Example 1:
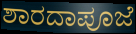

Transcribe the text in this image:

ಶಾರದಾಪೂಜೆ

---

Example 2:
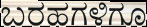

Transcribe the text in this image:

ಬರಹಗಳಿಗೂ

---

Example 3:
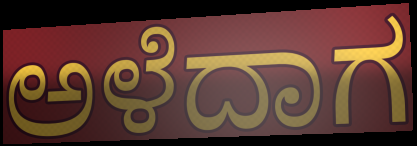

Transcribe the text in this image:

ಅಳೆದಾಗ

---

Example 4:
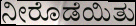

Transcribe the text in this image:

ನೀರೊಡೆಯಿತು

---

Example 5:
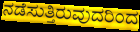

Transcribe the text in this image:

ನಡೆಸುತ್ತಿರುವುದರಿಂದ